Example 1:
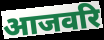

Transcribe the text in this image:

आजवरि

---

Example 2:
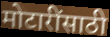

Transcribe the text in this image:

मोटारींसाठी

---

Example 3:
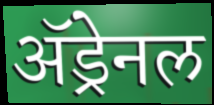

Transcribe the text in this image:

ॲड्रेनल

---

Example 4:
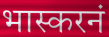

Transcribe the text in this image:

भास्करनं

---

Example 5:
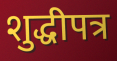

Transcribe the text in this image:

शुद्धीपत्र